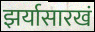
झर्यासारखं